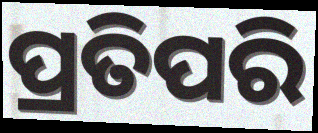
ପ୍ରତିପରି